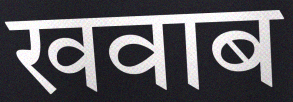
खवाब